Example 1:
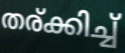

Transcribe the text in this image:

തര്ക്കിച്ച്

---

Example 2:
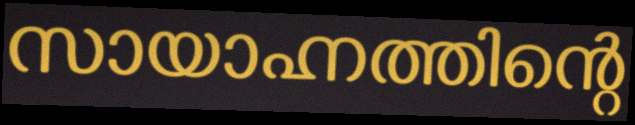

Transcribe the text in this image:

സായാഹ്നത്തിന്റെ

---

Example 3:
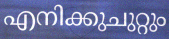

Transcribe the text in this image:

എനിക്കുചുറ്റും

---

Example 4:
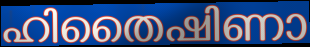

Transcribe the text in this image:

ഹിതൈഷിണാ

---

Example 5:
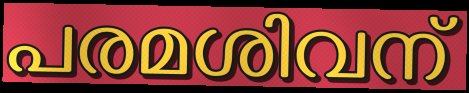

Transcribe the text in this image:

പരമശിവന്